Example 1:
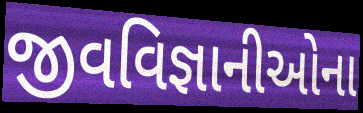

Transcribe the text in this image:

જીવવિજ્ઞાનીઓના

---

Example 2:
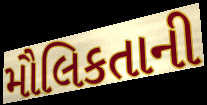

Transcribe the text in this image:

મૌલિકતાની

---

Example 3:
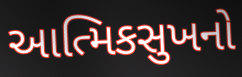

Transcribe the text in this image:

આત્મિકસુખનો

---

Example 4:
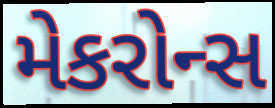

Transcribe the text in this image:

મેકરોન્સ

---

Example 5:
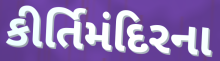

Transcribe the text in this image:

કીર્તિમંદિરના